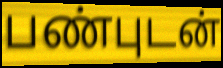
பண்புடன்